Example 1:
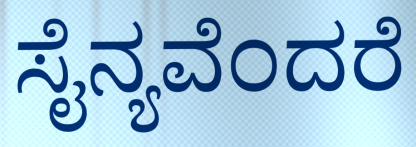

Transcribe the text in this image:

ಸೈನ್ಯವೆಂದರೆ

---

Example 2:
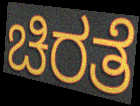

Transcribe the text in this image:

ಚಿರತೆ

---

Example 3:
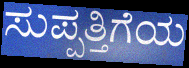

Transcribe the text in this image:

ಸುಪ್ಪತ್ತಿಗೆಯ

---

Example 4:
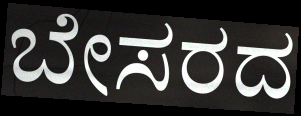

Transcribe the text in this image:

ಬೇಸರದ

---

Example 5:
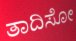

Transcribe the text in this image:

ತಾದಿಸೋ